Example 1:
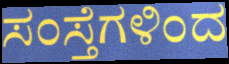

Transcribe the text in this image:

ಸಂಸ್ತೆಗಳಿಂದ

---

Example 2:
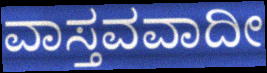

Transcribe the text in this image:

ವಾಸ್ತವವಾದೀ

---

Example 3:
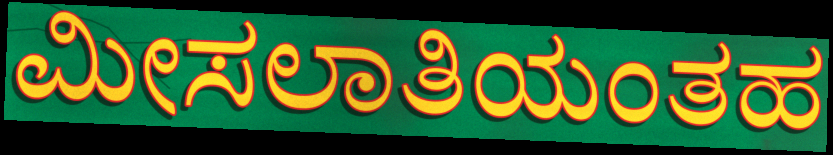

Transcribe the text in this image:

ಮೀಸಲಾತಿಯಂತಹ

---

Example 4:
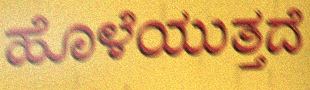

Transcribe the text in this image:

ಹೊಳೆಯುತ್ತದೆ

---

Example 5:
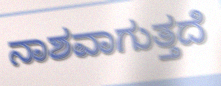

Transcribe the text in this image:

ನಾಶವಾಗುತ್ತದೆ